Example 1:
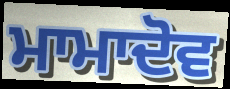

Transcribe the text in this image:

ਮਾਮਾਦੋਵ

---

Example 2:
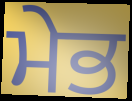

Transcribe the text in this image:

ਮੇਭ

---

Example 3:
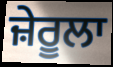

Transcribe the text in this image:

ਜ਼ੇਰੂਲਾ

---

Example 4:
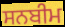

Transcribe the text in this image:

ਸਨਬੀਮ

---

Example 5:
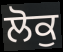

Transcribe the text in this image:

ਲੋਕੁ